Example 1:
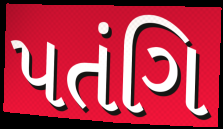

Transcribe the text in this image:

પતંગિ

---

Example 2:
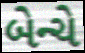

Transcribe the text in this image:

બેન્ચે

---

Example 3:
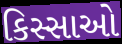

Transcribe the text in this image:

કિસ્સાઓ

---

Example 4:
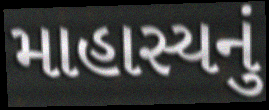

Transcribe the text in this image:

માહાસ્યનું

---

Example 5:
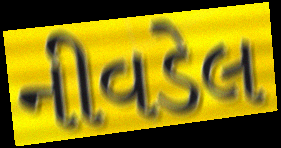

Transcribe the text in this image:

નીવડેલ